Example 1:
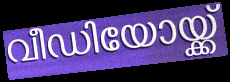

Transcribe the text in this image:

വീഡിയോയ്ക്ക്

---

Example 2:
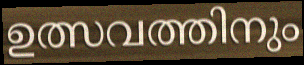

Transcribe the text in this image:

ഉത്സവത്തിനും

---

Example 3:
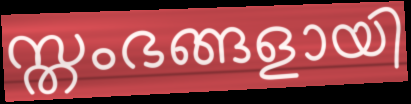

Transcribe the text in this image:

സ്തംഭങ്ങളായി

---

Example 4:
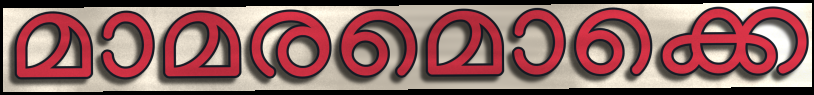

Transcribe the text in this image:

മാമരമൊക്കെ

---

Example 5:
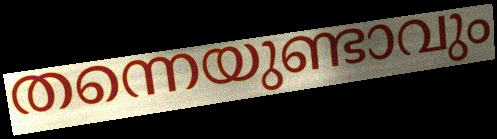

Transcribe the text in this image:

തന്നെയുണ്ടാവും